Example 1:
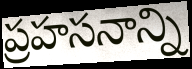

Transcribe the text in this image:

ప్రహసనాన్ని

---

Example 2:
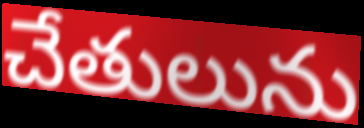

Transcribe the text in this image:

చేతులును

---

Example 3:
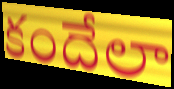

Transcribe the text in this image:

కందేలా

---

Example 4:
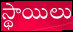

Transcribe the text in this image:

స్థాయిలు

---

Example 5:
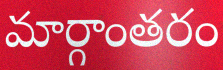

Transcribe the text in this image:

మార్గాంతరం